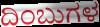
ದಿಂಬುಗಳ